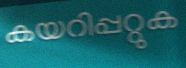
കയറിപ്പറ്റുക